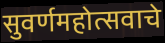
सुवर्णमहोत्सवाचे